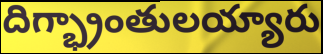
దిగ్భ్రాంతులయ్యారు